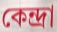
কেন্দ্রা